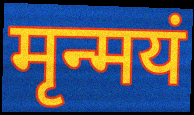
मृन्मयं